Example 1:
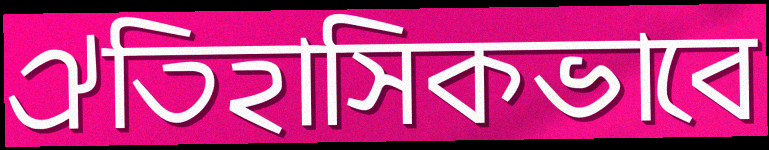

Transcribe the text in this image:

ঐতিহাসিকভাবে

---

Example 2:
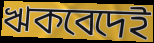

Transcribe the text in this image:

ঋকবেদেই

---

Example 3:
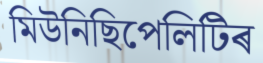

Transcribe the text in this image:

মিউনিছিপেলিটিৰ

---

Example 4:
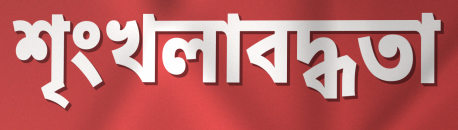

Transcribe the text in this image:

শৃংখলাবদ্ধতা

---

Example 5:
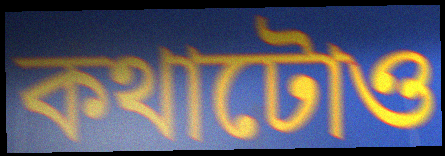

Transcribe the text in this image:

কথাটোও